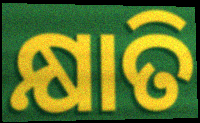
କ୍ଷାତି